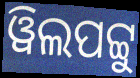
ୱିଲପଟ୍ଟୁ